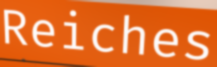
Reiches